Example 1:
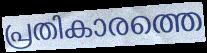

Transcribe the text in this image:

പ്രതികാരത്തെ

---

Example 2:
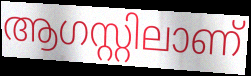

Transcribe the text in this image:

ആഗസ്റ്റിലാണ്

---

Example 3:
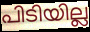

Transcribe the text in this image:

പിടിയില്ല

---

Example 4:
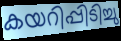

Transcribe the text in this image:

കയറിപ്പിടിച്ചു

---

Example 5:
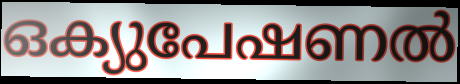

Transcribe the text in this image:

ഒക്യുപേഷണൽ